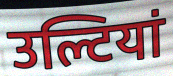
उल्टियां